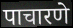
पाचारणे